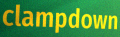
clampdown